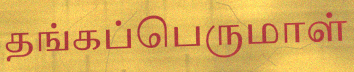
தங்கப்பெருமாள்